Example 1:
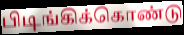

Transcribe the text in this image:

பிடிங்கிக்கொண்டு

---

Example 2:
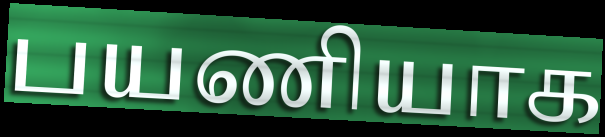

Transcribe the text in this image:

பயணியாக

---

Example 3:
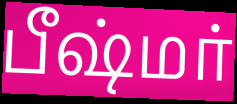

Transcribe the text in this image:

பீஷ்மர்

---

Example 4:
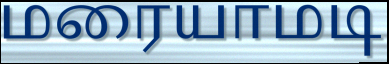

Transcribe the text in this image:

மரையாமடி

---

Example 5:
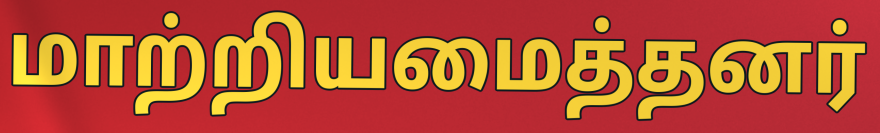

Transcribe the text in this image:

மாற்றியமைத்தனர்